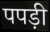
पपड़ी